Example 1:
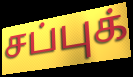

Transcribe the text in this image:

சப்புக்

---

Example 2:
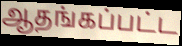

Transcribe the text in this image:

ஆதங்கப்பட்ட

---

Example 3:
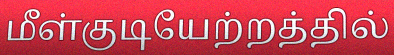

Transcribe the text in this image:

மீள்குடியேற்றத்தில்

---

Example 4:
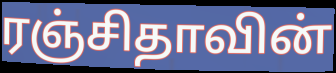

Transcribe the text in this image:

ரஞ்சிதாவின்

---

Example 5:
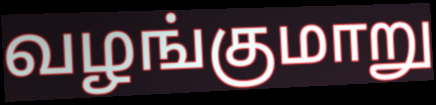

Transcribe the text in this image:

வழங்குமாறு